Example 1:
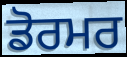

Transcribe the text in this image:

ਡੋਰਮਰ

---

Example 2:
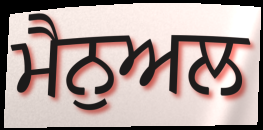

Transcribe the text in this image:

ਮੈਨੁਅਲ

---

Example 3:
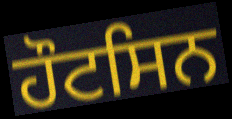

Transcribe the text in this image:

ਹੌਟਸਿਨ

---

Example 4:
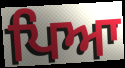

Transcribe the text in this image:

ਪਿਆ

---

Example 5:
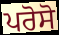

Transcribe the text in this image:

ਪਰੋਸੋ